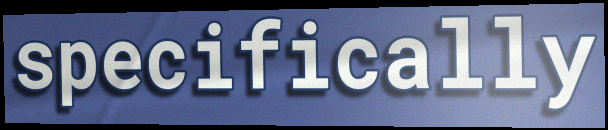
specifically